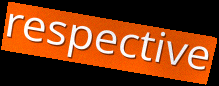
respective